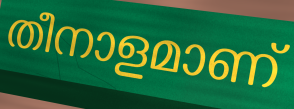
തീനാളമാണ്